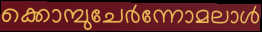
ക്കൊമ്പുചേർന്നോമലാൾ